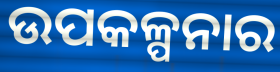
ଉପକଳ୍ପନାର